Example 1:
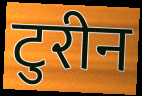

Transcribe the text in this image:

टुरीन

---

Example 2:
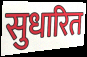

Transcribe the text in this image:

सुधारित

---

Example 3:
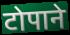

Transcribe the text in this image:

टोपाने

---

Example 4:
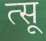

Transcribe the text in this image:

त्सू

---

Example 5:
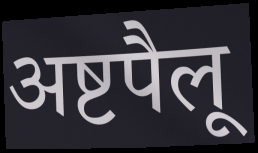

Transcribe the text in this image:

अष्टपैलू